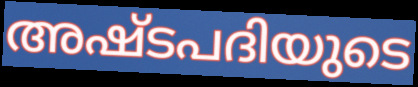
അഷ്ടപദിയുടെ